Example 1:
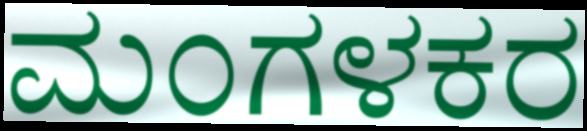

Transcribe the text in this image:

ಮಂಗಳಕರ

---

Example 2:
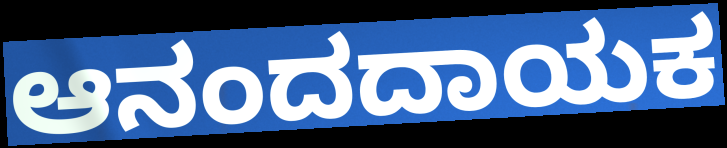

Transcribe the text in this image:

ಆನಂದದಾಯಕ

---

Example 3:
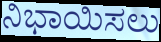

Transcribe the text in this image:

ನಿಭಾಯಿಸಲು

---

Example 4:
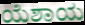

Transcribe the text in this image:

ಯೆಶಾಯ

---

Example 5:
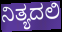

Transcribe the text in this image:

ನಿತ್ಯದಲಿ